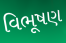
વિભૂષણ